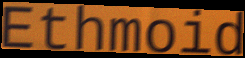
Ethmoid